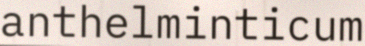
anthelminticum